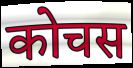
कोचस